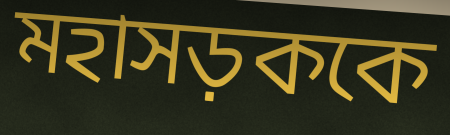
মহাসড়ককে